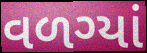
વળગ્યાં